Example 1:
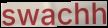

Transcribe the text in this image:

swachh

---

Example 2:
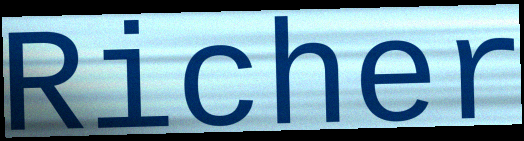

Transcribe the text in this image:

Richer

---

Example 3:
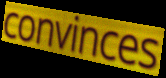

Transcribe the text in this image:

convinces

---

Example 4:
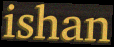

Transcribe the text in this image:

ishan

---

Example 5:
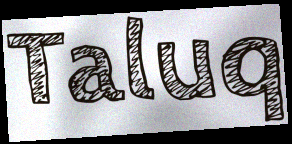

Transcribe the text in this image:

Taluq